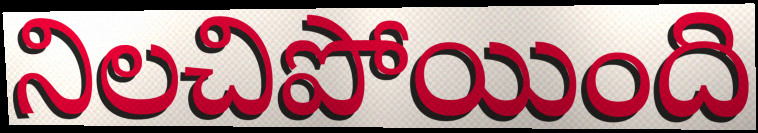
నిలచిపోయింది